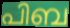
പിബ